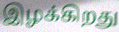
இழக்கிறது